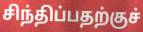
சிந்திப்பதற்குச்